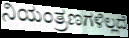
ನಿಯಂತ್ರಣಗಳಿಲ್ಲದೆ